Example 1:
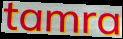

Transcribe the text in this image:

tamra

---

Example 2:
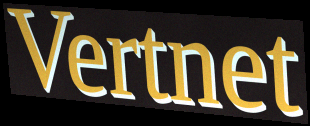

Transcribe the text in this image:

Vertnet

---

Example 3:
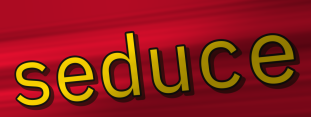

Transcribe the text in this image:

seduce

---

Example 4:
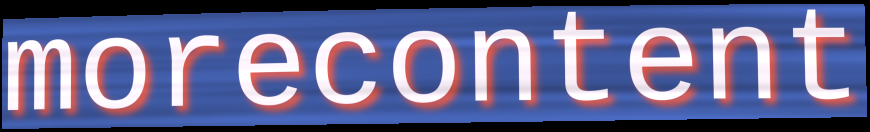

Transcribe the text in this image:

morecontent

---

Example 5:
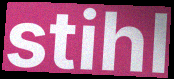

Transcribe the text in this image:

stihl